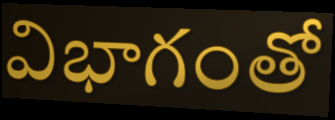
విభాగంతో